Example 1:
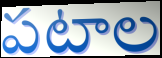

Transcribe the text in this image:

పటాల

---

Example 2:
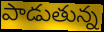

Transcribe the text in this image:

పాడుతున్న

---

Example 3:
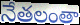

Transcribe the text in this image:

నేతలంతా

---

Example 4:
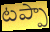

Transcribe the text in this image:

టప్పా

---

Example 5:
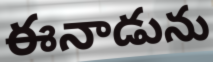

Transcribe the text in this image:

ఈనాడును